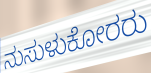
ನುಸುಳುಕೋರರು